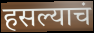
हसल्याचं